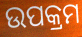
ଉପକ୍ରମ